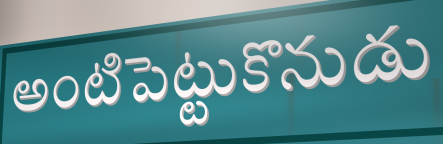
అంటిపెట్టుకొనుడు